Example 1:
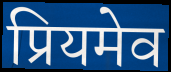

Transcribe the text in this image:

प्रियमेव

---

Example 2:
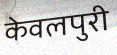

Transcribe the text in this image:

केवलपुरी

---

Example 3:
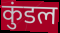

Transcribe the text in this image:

कुंडल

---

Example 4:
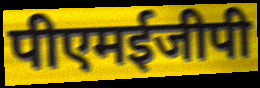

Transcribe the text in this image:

पीएमईजीपी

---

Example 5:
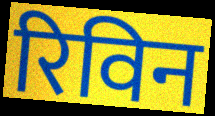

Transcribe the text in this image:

रिविन